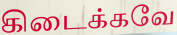
கிடைக்கவே